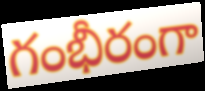
గంభీరంగా